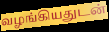
வழங்கியதுடன்